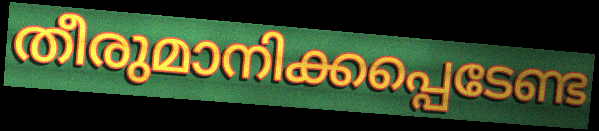
തീരുമാനിക്കപ്പെടേണ്ട